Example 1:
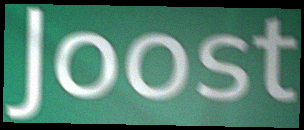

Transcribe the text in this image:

Joost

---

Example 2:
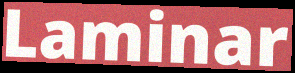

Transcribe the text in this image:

Laminar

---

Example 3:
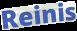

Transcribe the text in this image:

Reinis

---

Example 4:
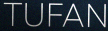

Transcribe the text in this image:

TUFAN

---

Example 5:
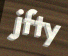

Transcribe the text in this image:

jfty